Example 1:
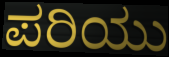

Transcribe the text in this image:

ಪರಿಯು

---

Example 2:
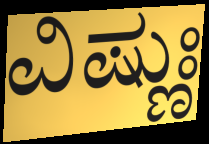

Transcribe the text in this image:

ವಿಷ್ಣುಃ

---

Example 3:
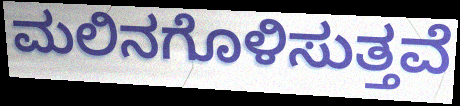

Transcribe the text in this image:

ಮಲಿನಗೊಳಿಸುತ್ತವೆ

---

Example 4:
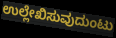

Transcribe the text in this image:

ಉಲ್ಲೇಖಿಸುವುದುಂಟು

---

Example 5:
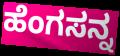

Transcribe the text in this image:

ಹೆಂಗಸನ್ನ